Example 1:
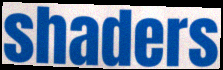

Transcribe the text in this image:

shaders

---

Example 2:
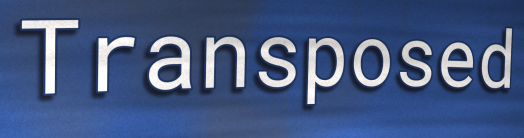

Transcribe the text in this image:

Transposed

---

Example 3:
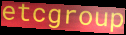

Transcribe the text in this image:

etcgroup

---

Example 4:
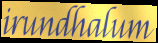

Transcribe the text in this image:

irundhalum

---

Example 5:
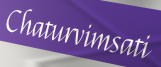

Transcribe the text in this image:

Chaturvimsati